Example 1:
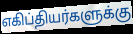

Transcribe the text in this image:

எகிப்தியர்களுக்கு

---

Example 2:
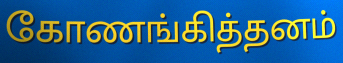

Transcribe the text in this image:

கோணங்கித்தனம்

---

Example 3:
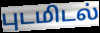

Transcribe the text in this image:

புடமிடல்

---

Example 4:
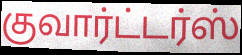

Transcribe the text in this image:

குவார்ட்டர்ஸ்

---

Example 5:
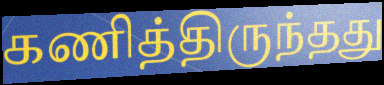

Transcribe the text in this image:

கணித்திருந்தது